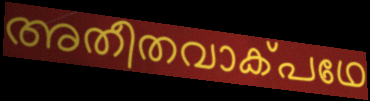
അതീതവാക്പഥേ